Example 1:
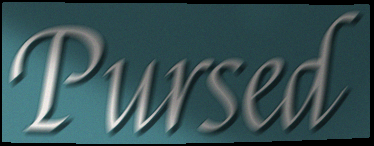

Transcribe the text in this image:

Pursed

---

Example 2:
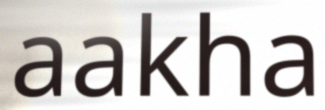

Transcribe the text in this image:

aakha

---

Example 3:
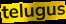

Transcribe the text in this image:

telugus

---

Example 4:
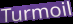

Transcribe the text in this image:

Turmoil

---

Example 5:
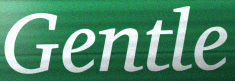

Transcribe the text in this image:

Gentle